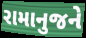
રામાનુજને